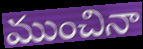
ముంచినా